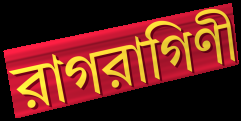
রাগরাগিণী